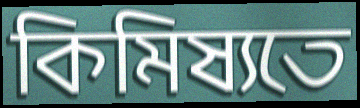
কিমিষ্যতে